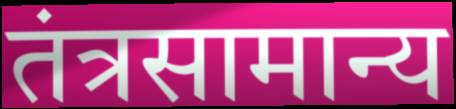
तंत्रसामान्य